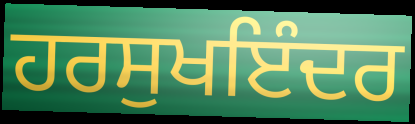
ਹਰਸੁਖਇੰਦਰ